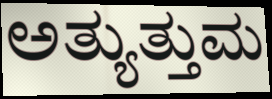
ಅತ್ಯುತ್ತುಮ